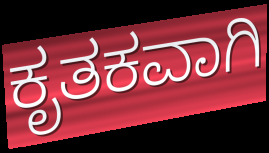
ಕೃತಕವಾಗಿ